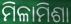
ମିଳାମିଶା